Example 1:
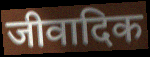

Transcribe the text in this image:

जीवादिक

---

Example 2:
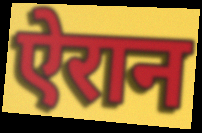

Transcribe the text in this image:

ऐरान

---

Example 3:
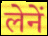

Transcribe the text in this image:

लेनें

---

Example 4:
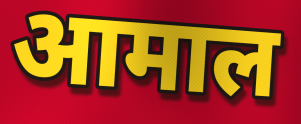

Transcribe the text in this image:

आमाल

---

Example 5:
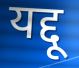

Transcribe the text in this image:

यद्दू